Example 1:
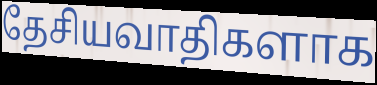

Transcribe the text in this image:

தேசியவாதிகளாக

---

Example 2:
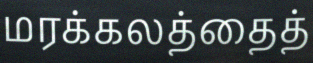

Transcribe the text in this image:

மரக்கலத்தைத்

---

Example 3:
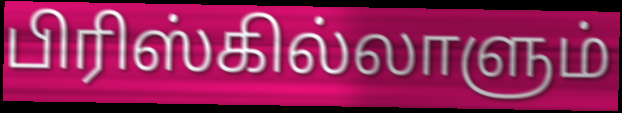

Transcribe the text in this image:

பிரிஸ்கில்லாளும்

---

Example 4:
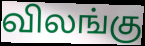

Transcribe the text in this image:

விலங்கு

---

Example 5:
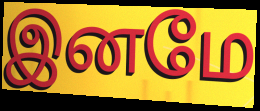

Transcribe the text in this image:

இனமே